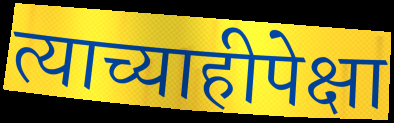
त्याच्याहीपेक्षा